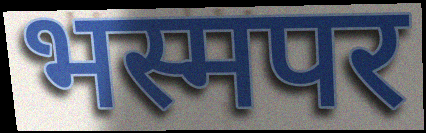
भस्मपर